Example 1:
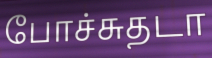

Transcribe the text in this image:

போச்சுதடா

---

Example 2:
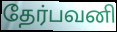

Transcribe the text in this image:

தேர்பவனி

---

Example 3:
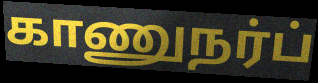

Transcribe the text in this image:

காணுநர்ப்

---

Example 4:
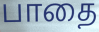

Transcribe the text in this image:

பாதை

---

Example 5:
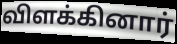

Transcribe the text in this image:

விளக்கினார்